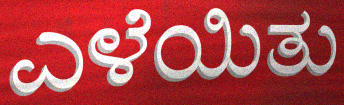
ಎಳೆಯಿತು